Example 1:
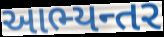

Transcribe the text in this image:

આભ્યન્તર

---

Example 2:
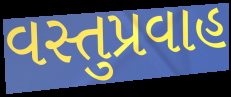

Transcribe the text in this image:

વસ્તુપ્રવાહ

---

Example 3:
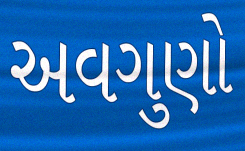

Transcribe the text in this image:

અવગુણો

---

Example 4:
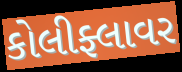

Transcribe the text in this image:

કોલીફ્લાવર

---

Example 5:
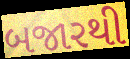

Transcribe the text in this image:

બજારથી